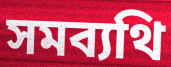
সমব্যথি